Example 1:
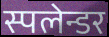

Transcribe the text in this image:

स्पलेन्डर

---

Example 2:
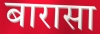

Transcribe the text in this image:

बारासा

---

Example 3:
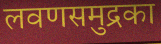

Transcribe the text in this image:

लवणसमुद्रका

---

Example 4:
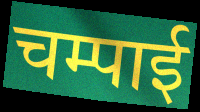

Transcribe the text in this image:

चम्‍पाई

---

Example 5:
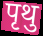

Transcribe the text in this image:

पृथु